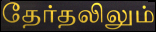
தேர்தலிலும்